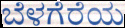
ಬೆಳಗೆರೆಯ